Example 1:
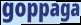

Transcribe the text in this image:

goppaga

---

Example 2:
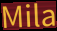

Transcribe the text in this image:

Mila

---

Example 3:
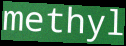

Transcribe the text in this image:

methyl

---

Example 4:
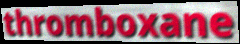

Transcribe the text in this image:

thromboxane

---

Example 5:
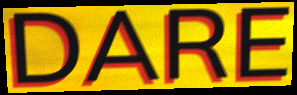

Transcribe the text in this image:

DARE